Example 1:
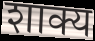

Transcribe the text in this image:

शाक्य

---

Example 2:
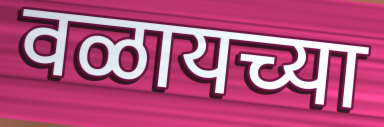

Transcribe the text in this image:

वळायच्या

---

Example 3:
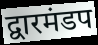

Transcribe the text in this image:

द्वारमंडप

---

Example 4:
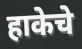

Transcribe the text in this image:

हाकेचे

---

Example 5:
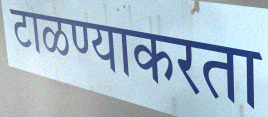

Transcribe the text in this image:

टाळण्याकरता